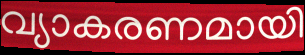
വ്യാകരണമായി